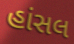
હાંસલ